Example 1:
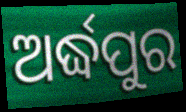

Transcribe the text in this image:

ଅର୍ଦ୍ଧପୁର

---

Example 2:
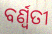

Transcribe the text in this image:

ବର୍ଣ୍ବତୀ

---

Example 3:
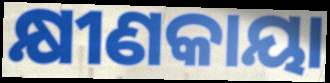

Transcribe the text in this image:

କ୍ଷୀଣକାୟା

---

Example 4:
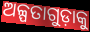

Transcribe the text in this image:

ଅଳ୍ପତାଗୁଡ଼ାକୁ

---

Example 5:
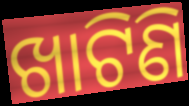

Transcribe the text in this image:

ଖାଟିଣି